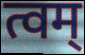
त्वम्